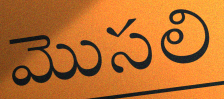
మొసలి